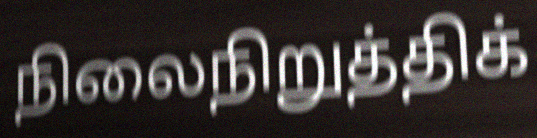
நிலைநிறுத்திக்